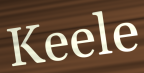
Keele